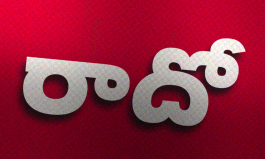
రాదో